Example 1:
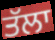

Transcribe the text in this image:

ਤੱਲਾ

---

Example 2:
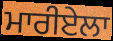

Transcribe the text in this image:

ਮਾਰੀਏਲਾ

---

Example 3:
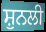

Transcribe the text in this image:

ਸ਼ੁਨਲੀ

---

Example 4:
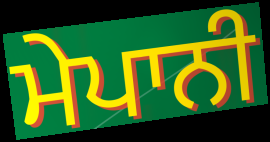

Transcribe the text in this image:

ਮੇਪਾਨੀ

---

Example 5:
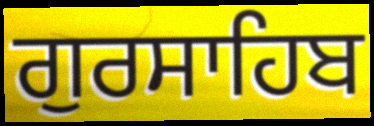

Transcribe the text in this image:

ਗੁਰਸਾਹਿਬ